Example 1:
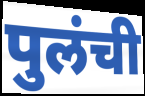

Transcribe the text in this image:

पुलंची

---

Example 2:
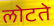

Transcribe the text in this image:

लोटते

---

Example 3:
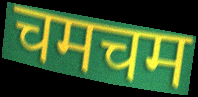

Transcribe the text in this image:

चमचम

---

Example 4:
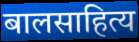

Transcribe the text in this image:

बालसाहित्य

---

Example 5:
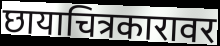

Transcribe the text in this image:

छायाचित्रकारावर